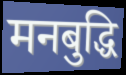
मनबुद्धि